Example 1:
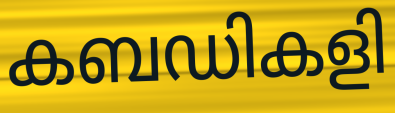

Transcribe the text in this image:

കബഡികളി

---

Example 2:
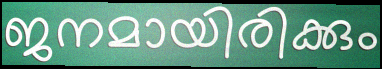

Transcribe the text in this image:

ജനമായിരിക്കും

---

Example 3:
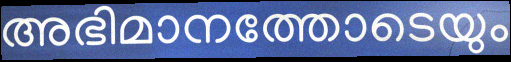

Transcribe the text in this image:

അഭിമാനത്തോടെയും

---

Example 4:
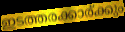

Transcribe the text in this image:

ഇടത്തരക്കാര്ക്കും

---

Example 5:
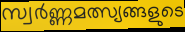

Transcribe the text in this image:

സ്വർണ്ണമത്സ്യങ്ങളുടെ